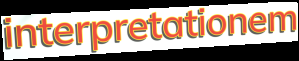
interpretationem